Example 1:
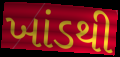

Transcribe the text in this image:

ખાંડથી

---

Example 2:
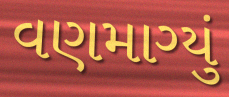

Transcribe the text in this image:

વણમાગ્યું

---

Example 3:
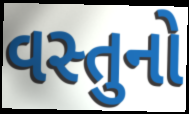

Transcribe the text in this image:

વસ્તુનો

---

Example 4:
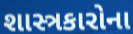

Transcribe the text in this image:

શાસ્ત્રકારોના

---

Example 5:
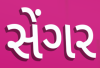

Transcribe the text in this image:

સેંગર